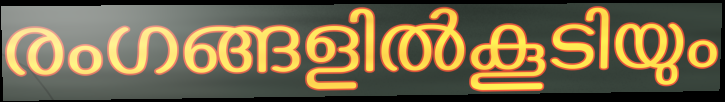
രംഗങ്ങളിൽകൂടിയും